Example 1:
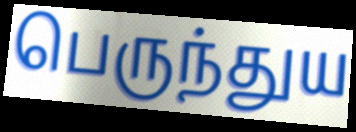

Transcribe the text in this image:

பெருந்துய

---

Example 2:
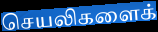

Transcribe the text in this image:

செயலிகளைக்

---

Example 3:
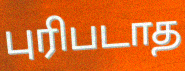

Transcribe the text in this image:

புரிபடாத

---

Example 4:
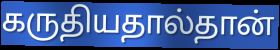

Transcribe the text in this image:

கருதியதால்தான்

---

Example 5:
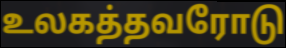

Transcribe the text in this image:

உலகத்தவரோடு